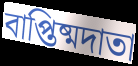
বাপ্তিষ্মদাতা